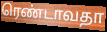
ரெண்டாவதா